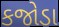
કજોડા